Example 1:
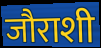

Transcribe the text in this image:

जौराशी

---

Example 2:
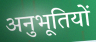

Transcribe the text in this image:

अनुभूतियों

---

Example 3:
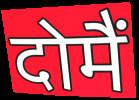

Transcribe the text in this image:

दोमैं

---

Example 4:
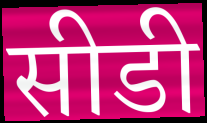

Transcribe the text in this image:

सीडी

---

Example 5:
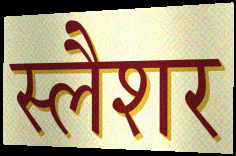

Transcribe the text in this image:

स्लैशर